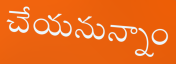
చేయనున్నాం